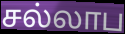
சல்லாப